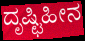
ದೃಷ್ಟಿಹೀನ